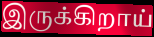
இருக்கிறாய்